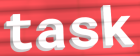
task